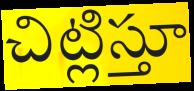
చిట్లిస్తూ